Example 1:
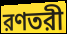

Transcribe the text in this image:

রণতরী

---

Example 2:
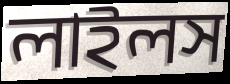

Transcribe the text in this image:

লাইলস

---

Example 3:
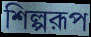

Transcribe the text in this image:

শিল্পরূপ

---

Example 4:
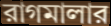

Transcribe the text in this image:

রাগমালার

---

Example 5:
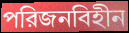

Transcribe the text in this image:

পরিজনবিহীন